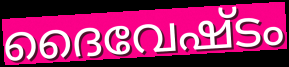
ദൈവേഷ്ടം